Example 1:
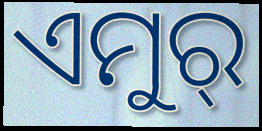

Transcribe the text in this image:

ଏମୁର୍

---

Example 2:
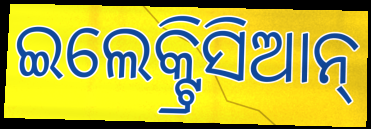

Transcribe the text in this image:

ଇଲେକ୍ଟ୍ରିସିଆନ୍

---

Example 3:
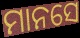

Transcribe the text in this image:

ମାନସେ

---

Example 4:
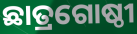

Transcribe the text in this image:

ଛାତ୍ରଗୋଷ୍ଠୀ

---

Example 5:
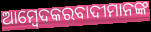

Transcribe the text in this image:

ଆମ୍ବେଦକରବାଦୀମାନଙ୍କ